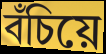
বঁচিয়ে